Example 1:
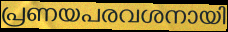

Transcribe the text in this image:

പ്രണയപരവശനായി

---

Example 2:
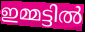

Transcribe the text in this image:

ഇമ്മട്ടിൽ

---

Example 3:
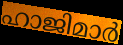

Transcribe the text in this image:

ഹാജിമാർ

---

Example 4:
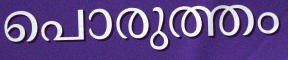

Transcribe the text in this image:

പൊരുത്തം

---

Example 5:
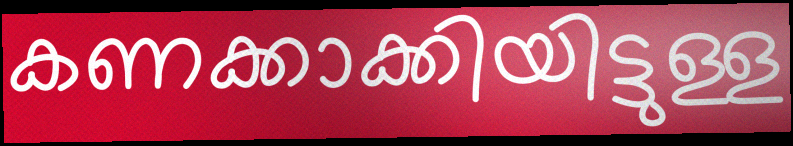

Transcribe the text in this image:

കണക്കാക്കിയിട്ടുള്ള